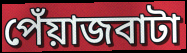
পেঁয়াজবাটা